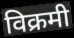
विक्रमी